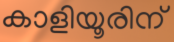
കാളിയൂരിന്